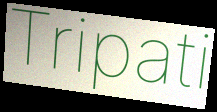
Tripati